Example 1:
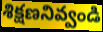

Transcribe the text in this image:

శిక్షణనివ్వండి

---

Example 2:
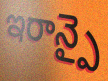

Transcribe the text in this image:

ఇరాన్పై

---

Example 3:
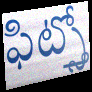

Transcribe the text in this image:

ఫిట్స్తో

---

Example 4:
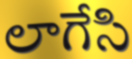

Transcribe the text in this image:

లాగేసి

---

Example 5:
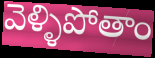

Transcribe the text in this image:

వెళ్ళిపోతాం